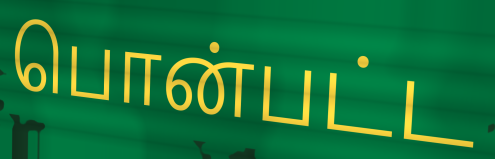
பொன்பட்ட